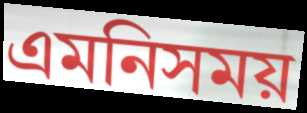
এমনিসময়